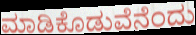
ಮಾಡಿಕೊಡುವೆನೆಂದು